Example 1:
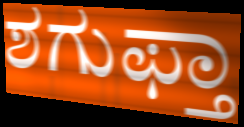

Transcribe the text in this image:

ಶಗುಫ್ತಾ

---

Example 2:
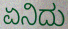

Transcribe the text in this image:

ಏನಿದು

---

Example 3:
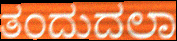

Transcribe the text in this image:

ತಂದುದಲಾ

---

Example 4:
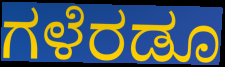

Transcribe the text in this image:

ಗಳೆರಡೂ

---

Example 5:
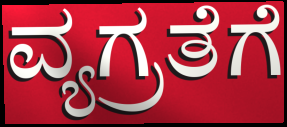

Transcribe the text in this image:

ವ್ಯಗ್ರತೆಗೆ